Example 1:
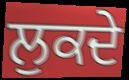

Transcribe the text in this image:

ਲੁਕਦੇ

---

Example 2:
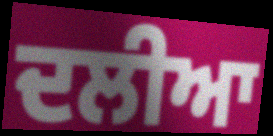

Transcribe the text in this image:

ਦਲੀਆ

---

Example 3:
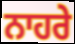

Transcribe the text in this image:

ਨਾਹਰੇ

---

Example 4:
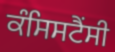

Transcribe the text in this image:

ਕੰਸਿਸਟੈਂਸੀ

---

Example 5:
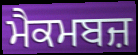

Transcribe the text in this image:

ਮੈਕਮਬਜ਼